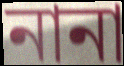
নানা